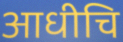
आधीचि